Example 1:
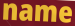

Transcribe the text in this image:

name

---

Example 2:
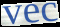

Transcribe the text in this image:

vec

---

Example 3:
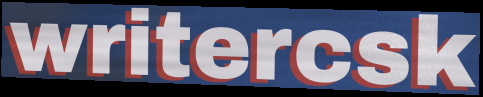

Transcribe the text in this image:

writercsk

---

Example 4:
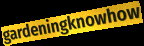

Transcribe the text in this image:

gardeningknowhow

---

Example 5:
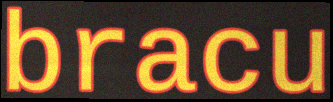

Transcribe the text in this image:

bracu